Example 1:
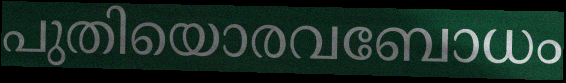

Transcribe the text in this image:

പുതിയൊരവബോധം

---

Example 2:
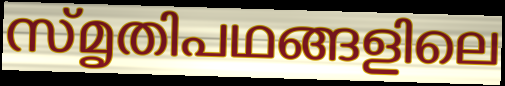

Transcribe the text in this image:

സ്മൃതിപഥങ്ങളിലെ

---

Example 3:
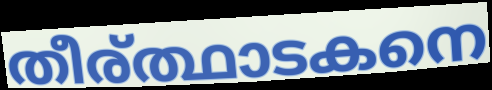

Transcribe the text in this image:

തീര്ത്ഥാടകനെ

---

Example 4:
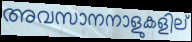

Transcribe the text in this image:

അവസാനനാളുകളില്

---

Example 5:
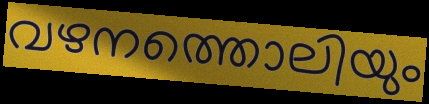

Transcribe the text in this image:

വഴനത്തൊലിയും